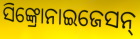
ସିଙ୍କ୍ରୋନାଇଜେସନ୍